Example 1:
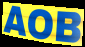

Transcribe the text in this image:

AOB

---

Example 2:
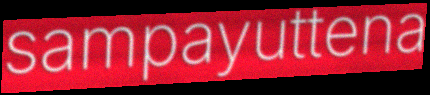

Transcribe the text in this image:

sampayuttena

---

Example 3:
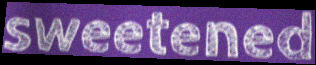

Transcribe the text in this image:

sweetened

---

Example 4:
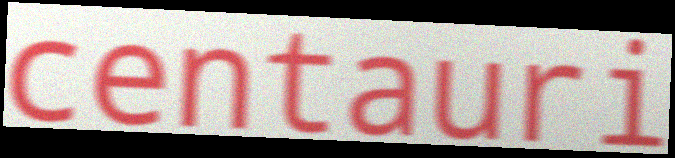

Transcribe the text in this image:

centauri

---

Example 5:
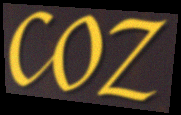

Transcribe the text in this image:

coz